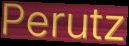
Perutz